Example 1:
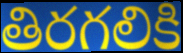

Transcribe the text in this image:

తిరగలికి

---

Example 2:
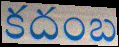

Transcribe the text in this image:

కదంబ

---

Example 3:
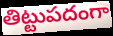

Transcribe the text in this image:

తిట్టుపదంగా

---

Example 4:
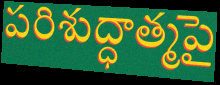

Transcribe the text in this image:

పరిశుద్ధాత్మపై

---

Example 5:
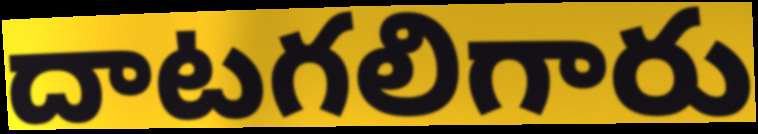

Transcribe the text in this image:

దాటగలిగారు